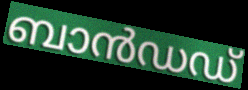
ബാൻഡഡ്